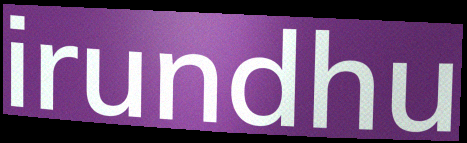
irundhu